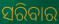
ସରିବାର